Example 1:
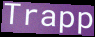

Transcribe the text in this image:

Trapp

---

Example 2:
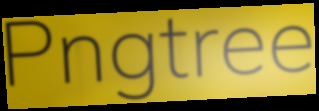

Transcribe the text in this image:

Pngtree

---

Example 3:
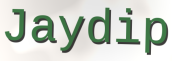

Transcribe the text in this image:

Jaydip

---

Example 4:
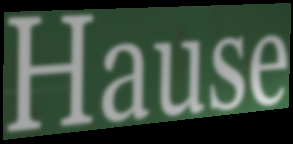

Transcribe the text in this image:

Hause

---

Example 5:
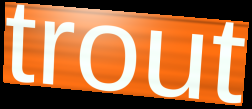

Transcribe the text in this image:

trout